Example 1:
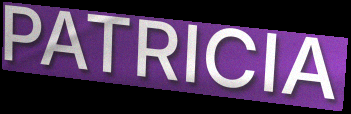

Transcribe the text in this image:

PATRICIA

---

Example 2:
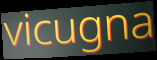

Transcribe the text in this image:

vicugna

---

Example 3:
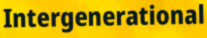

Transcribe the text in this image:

Intergenerational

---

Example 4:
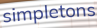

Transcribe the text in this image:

simpletons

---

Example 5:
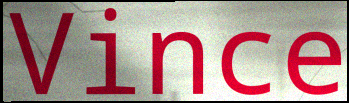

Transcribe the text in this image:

Vince